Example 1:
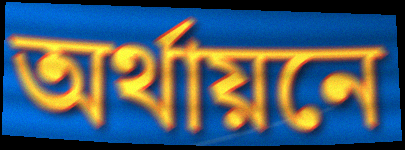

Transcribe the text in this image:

অর্থায়নে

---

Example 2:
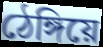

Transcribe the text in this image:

ঠেঙ্গিয়ে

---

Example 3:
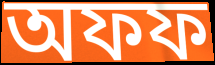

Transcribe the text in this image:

অফফ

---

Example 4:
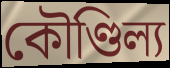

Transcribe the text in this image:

কৌণ্ডিল্য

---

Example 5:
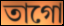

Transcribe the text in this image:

তাগো